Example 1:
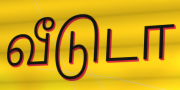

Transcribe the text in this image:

வீடுடா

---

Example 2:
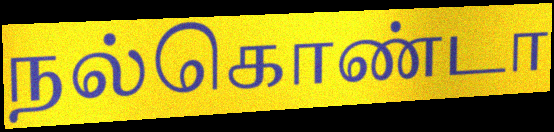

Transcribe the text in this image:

நல்கொண்டா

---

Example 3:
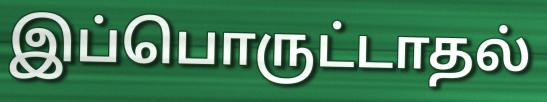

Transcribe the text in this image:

இப்பொருட்டாதல்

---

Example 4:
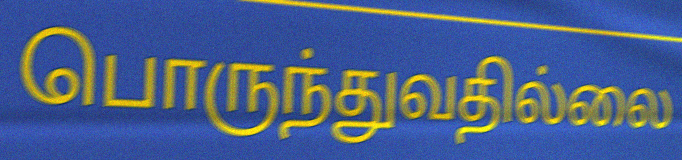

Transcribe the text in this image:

பொருந்துவதில்லை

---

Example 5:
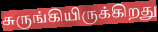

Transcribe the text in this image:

சுருங்கியிருக்கிறது